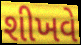
શીખવે